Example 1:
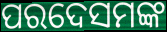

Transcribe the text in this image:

ପରଦେସମଙ୍କ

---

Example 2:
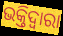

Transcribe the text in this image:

ଭକ୍ତିଦ୍ଵାରା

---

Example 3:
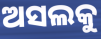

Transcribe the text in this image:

ଅସଲକୁ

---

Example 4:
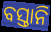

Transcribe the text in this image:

ବସ୍ତାନି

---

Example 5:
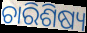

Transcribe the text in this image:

ଚାରିଶିଷ୍ୟ